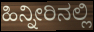
ಹಿನ್ನೀರಿನಲ್ಲಿ